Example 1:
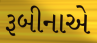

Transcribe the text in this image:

રૂબીનાએ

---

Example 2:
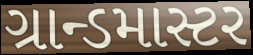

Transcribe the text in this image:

ગ્રાન્ડમાસ્ટર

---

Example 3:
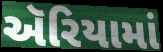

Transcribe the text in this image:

ઍરિયામાં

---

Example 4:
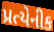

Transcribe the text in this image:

પ્રત્યેનીક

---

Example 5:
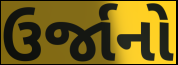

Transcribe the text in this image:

ઉર્જાનો